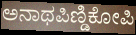
ಅನಾಥಪಿಣ್ಡಿಕೋಪಿ